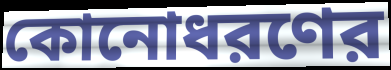
কোনোধরণের